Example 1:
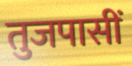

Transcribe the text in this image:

तुजपासीं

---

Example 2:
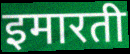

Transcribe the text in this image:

इमारती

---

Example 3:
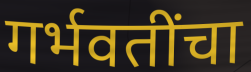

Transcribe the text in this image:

गर्भवतींचा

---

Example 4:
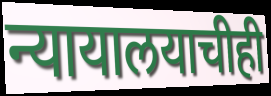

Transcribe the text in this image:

न्यायालयाचीही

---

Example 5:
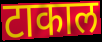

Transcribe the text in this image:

टाकाल